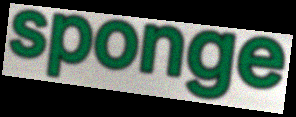
sponge